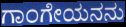
ಗಾಂಗೇಯನನು